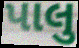
પાલુ